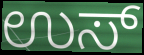
ಉಸ್